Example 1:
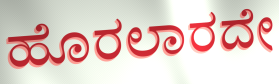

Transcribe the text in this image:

ಹೊರಲಾರದೇ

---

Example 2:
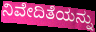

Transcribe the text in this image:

ನಿವೇದಿತೆಯನ್ನು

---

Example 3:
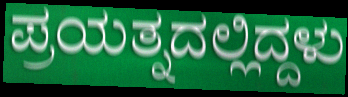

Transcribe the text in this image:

ಪ್ರಯತ್ನದಲ್ಲಿದ್ದಳು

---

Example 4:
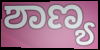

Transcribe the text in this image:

ಶಾಣ್ಯ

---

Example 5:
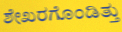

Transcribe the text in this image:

ಶೇಖರಗೊಂಡಿತ್ತು